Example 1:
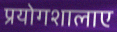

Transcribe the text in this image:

प्रयोगशालाए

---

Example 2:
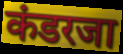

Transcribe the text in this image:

कंडरजा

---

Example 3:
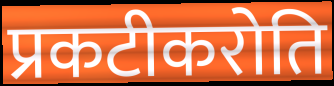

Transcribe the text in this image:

प्रकटीकरोति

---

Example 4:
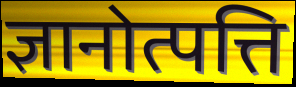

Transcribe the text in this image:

ज्ञानोत्पत्ति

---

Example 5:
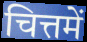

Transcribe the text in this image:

चित्तमें